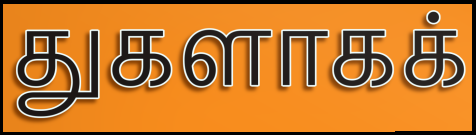
துகளாகக்